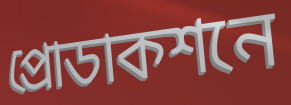
প্রোডাকশনে